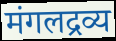
मंगलद्रव्य